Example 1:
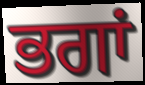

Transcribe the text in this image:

ਭਗਾਂ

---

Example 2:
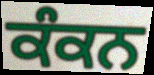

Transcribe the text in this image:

ਕੰਕਨ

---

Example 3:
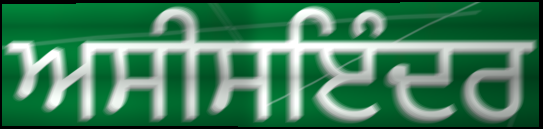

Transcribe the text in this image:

ਅਸੀਸਇੰਦਰ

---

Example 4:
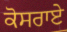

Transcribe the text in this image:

ਕੋਸਰਾਏ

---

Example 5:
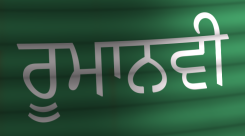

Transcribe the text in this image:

ਰੂਮਾਨਵੀ